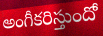
అంగీకరిస్తుందో